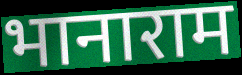
भानाराम